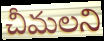
చీమలని